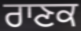
ਰਾਣਕ